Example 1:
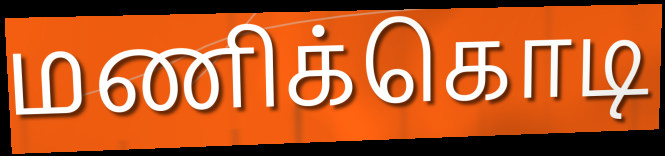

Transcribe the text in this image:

மணிக்கொடி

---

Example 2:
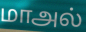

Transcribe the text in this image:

மாஅல்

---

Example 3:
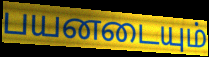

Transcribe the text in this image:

பயனடையும்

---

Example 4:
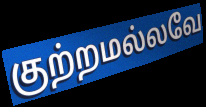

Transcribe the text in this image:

குற்றமல்லவே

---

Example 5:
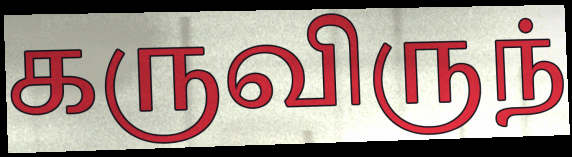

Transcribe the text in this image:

கருவிருந்